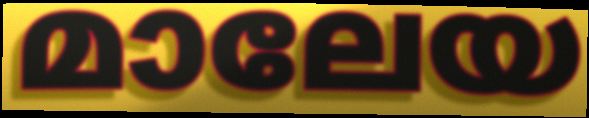
മാലേയ